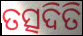
ତତ୍ସଦିତି